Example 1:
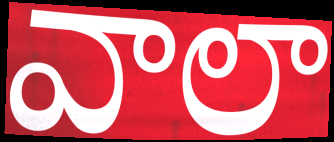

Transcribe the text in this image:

వాలా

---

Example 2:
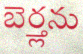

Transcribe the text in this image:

బెర్త్లను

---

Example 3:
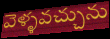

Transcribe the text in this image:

వెళ్ళవచ్చును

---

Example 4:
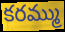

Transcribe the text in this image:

కరమ్ము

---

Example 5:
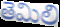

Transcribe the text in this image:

తెమిలి